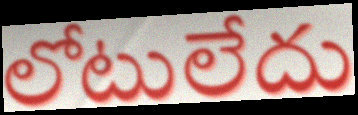
లోటులేదు